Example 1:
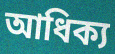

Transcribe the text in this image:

আধিক্য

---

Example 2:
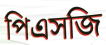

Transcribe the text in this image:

পিএসজি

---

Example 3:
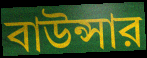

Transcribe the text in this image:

বাউন্সার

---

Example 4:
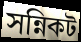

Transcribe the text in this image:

সন্নিকট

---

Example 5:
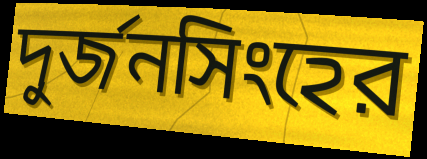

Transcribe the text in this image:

দুর্জনসিংহের